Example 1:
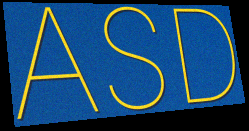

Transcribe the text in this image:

ASD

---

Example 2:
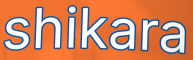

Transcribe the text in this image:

shikara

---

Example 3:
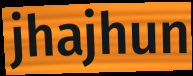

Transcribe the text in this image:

jhajhun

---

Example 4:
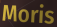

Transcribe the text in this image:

Moris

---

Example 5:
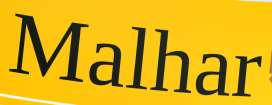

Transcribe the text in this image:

Malhar